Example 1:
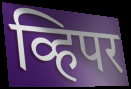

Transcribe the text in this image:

व्हिपर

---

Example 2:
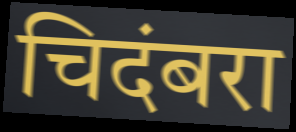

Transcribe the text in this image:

चिदंबरा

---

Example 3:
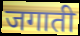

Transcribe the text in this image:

जगाती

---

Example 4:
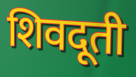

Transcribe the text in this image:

शिवदूती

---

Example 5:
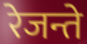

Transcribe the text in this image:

रेजन्ते